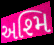
અશ્મિ